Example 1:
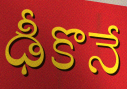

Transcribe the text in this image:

ఢీకొనే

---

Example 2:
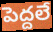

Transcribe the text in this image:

పెద్దలే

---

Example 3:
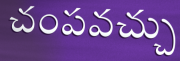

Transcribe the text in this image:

చంపవచ్చు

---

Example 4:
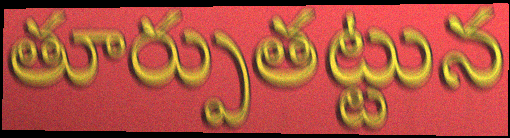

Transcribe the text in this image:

తూర్పుతట్టున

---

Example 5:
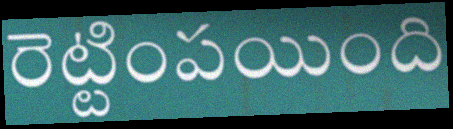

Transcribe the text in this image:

రెట్టింపయింది